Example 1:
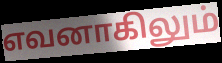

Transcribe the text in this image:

எவனாகிலும்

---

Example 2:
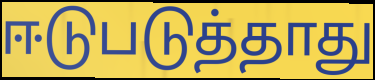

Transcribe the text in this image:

ஈடுபடுத்தாது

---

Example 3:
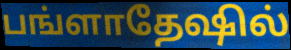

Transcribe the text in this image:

பங்ளாதேஷில்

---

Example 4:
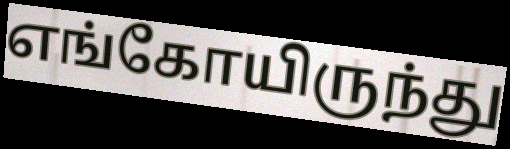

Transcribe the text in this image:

எங்கோயிருந்து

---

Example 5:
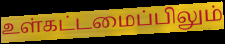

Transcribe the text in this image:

உள்கட்டமைப்பிலும்